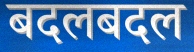
बदलबदल